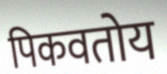
पिकवतोय